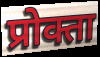
प्रोक्ता